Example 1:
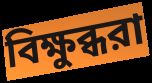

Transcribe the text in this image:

বিক্ষুব্ধরা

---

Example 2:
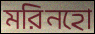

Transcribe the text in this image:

মরিনহো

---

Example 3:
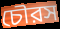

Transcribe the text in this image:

চৌরস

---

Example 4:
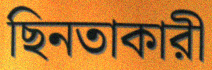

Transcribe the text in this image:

ছিনতাকারী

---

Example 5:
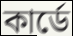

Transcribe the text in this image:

কার্ডে